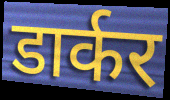
डार्कर